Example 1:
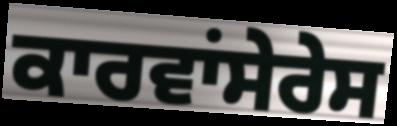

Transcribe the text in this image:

ਕਾਰਵਾਂਸੇਰੇਸ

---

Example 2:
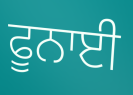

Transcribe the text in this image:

ਫੂਨਾਈ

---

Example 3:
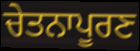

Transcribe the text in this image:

ਚੇਤਨਾਪੂਰਣ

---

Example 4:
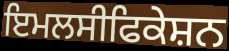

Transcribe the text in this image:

ਇਮਲਸੀਫਿਕੇਸ਼ਨ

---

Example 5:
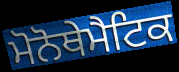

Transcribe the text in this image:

ਮੋਨੋਥੇਮੈਟਿਕ